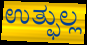
ಉತ್ಫುಲ್ಲ